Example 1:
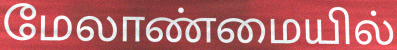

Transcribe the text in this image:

மேலாண்மையில்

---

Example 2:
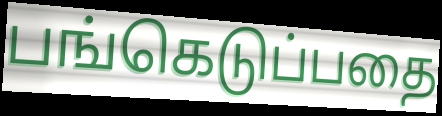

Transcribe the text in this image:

பங்கெடுப்பதை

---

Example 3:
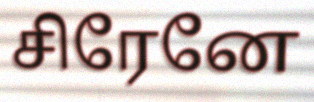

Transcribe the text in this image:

சிரேனே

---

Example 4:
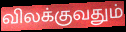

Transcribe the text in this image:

விலக்குவதும்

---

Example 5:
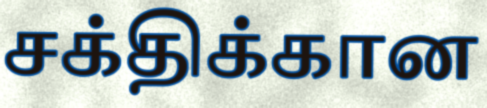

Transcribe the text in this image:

சக்திக்கான